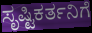
ಸೃಷ್ಟಿಕರ್ತನಿಗೆ